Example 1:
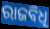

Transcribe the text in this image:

ରାଜବିଧି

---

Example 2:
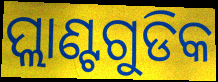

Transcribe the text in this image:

ପ୍ଲାଣ୍ଟଗୁଡିକ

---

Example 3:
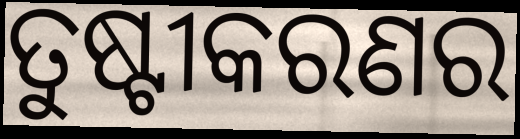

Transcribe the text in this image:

ତୁଷ୍ଟୀକରଣର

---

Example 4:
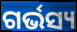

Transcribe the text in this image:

ଗର୍ଭସ୍ୟ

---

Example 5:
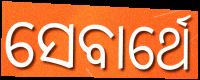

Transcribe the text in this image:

ସେବାର୍ଥେ